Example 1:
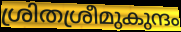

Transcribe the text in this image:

ശ്രിതശ്രീമുകുന്ദം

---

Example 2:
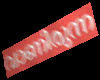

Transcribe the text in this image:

വാണിരുന്ന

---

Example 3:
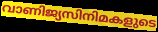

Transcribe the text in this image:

വാണിജ്യസിനിമകളുടെ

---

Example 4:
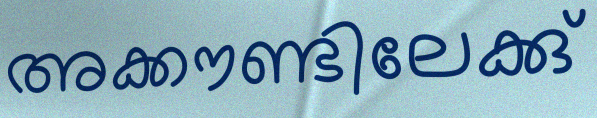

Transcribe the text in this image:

അക്കൗണ്ടിലേക്കു്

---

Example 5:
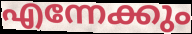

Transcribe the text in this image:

എന്നേക്കും